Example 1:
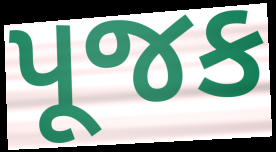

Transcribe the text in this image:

પૂજક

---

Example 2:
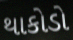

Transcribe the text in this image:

થાકોડો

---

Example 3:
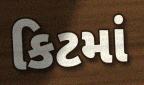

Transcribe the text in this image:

કિટમાં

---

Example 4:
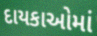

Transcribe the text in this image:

દાયકાઓમાં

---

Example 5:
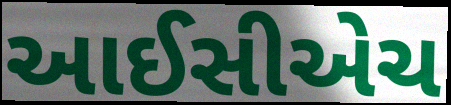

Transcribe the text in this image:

આઈસીએચ